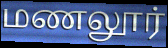
மணலூர்